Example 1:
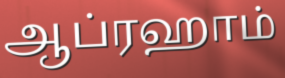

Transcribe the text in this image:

ஆப்ரஹாம்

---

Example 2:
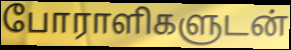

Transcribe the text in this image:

போராளிகளுடன்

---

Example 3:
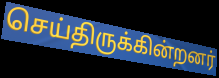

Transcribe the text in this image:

செய்திருக்கின்றனர்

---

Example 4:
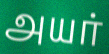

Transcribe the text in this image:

அயர்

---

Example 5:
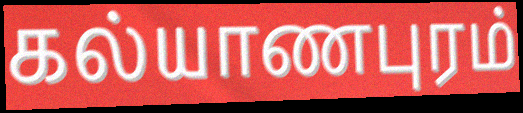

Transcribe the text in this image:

கல்யாணபுரம்